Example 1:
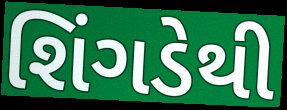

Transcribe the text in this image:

શિંગડેથી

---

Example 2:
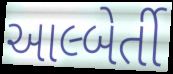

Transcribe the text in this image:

આલ્બેર્તી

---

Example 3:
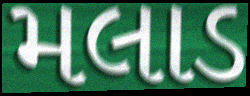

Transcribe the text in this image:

મલાડ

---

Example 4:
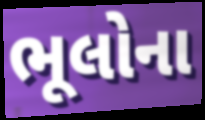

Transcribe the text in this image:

ભૂલોના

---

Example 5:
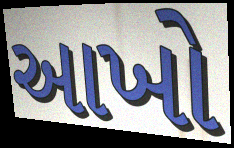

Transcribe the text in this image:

આખો